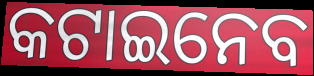
କଟାଇନେବ